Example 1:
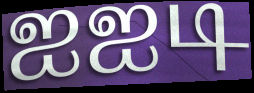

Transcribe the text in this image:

ஐஐடி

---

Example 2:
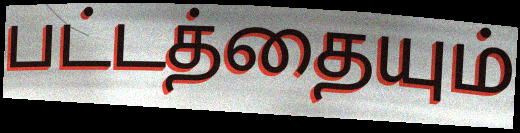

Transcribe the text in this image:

பட்டத்தையும்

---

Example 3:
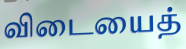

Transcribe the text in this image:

விடையைத்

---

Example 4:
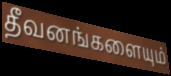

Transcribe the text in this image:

தீவனங்களையும்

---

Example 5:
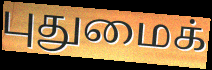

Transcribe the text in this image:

புதுமைக்